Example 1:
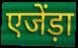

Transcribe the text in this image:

एजेंड़ा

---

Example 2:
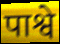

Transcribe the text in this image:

पाश्वे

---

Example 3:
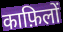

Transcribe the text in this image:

काफ़िलों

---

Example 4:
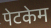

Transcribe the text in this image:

पेटकेम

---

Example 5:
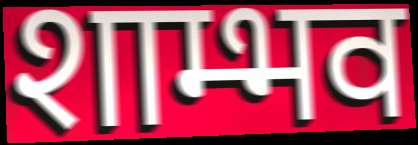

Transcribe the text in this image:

शाम्भव